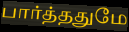
பார்த்ததுமே